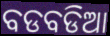
ବଡବଡିଆ